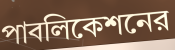
পাবলিকেশনের